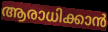
ആരാധിക്കാൻ